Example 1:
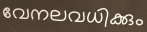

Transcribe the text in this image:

വേനലവധിക്കും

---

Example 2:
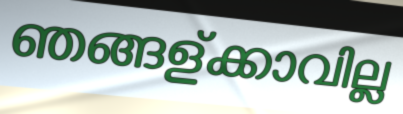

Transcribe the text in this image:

ഞങ്ങള്ക്കാവില്ല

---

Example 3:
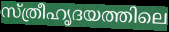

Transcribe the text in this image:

സ്ത്രീഹൃദയത്തിലെ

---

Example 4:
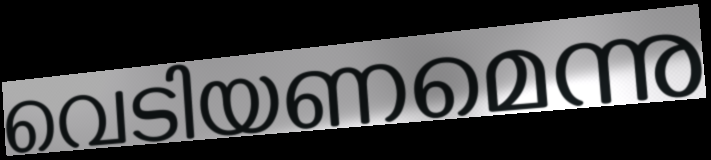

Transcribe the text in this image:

വെടിയണമെന്നു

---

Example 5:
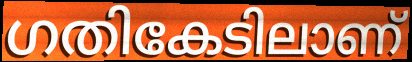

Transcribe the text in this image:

ഗതികേടിലാണ്